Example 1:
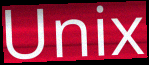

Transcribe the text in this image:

Unix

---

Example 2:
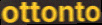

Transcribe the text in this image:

ottonto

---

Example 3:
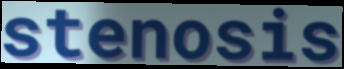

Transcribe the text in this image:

stenosis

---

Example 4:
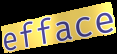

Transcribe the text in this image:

efface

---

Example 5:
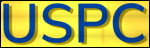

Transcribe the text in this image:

USPC